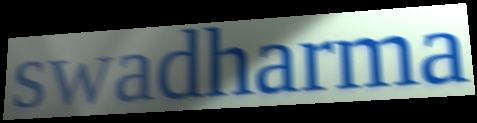
swadharma